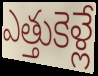
ఎత్తుకెళ్లే